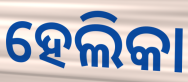
ହେଲିକା